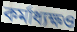
কর্মাধ্যক্ষও